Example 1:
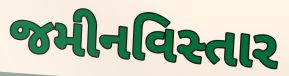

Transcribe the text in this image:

જમીનવિસ્તાર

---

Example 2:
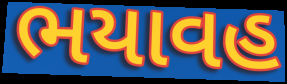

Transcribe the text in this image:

ભયાવહ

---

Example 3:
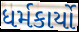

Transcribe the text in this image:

ધર્મકાર્યો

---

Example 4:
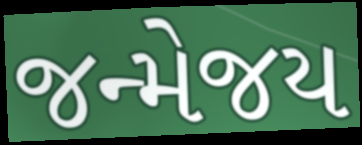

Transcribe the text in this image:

જન્મેજય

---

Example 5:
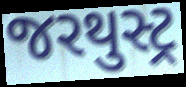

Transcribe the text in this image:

જરથુસ્ટ્ર